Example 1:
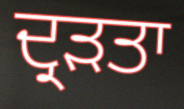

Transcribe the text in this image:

ਦ੍ਰੜਤਾ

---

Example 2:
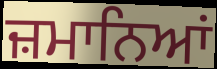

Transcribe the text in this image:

ਜ਼ਮਾਨਿਆਂ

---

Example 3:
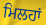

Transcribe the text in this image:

ਮਿਲਹਾਂ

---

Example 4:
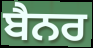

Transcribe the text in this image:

ਬੈਨਰ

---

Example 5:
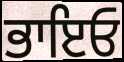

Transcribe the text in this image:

ਭਾਇਓ